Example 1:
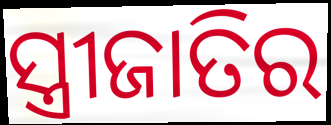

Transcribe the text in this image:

ସ୍ତ୍ରୀଜାତିର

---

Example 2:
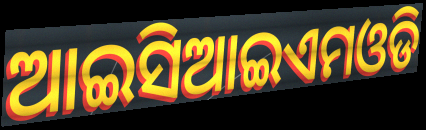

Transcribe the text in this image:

ଆଇସିଆଇଏମଓଡି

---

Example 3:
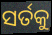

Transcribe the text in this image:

ସର୍ତକୁ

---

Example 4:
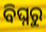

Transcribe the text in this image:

ବିଘ୍ନରୁ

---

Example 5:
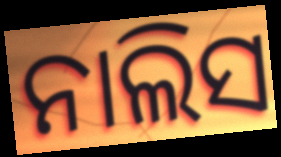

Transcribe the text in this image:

ନାଲିସ